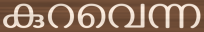
കുറവെന്ന